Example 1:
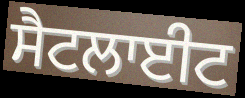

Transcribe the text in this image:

ਸੈਟਲਾਈਟ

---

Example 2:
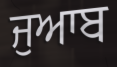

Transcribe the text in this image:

ਜੁਆਬ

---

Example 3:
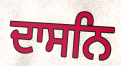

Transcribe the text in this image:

ਦਾਸਨਿ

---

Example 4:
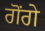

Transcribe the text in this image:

ਗੋਂਗੇ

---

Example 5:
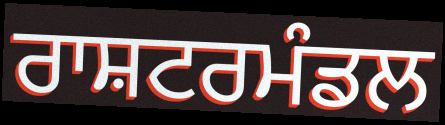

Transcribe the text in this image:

ਰਾਸ਼ਟਰਮੰਡਲ